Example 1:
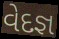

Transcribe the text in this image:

વેદજ્ઞ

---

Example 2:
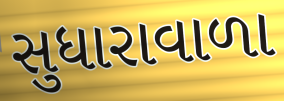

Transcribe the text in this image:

સુધારાવાળા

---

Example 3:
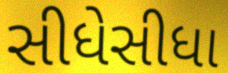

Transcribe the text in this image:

સીધેસીધા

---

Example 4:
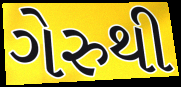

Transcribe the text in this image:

ગેરુથી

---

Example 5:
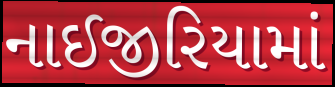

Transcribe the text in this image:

નાઈજીરિયામાં